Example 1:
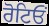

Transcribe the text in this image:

ਰੋਟਿਓਂ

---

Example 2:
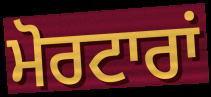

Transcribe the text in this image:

ਮੋਰਟਾਰਾਂ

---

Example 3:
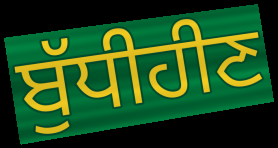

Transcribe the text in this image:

ਬੁੱਧੀਹੀਣ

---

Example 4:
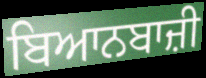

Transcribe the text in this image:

ਬਿਆਨਬਾਜ਼ੀ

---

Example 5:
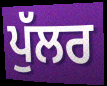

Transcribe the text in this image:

ਪੁੱਲਰ